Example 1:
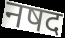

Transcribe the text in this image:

नषद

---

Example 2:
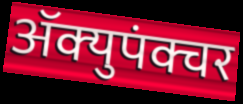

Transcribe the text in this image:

ॲक्युपंक्चर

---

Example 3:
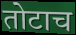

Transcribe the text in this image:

तोटाच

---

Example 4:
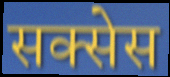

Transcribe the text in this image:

सक्सेस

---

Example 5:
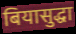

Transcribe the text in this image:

बियासुद्धा